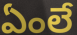
ఏంలే